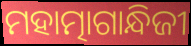
ମହାତ୍ମାଗାନ୍ଧିଜୀ